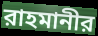
রাহমানীর